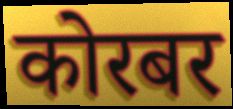
कोरबर